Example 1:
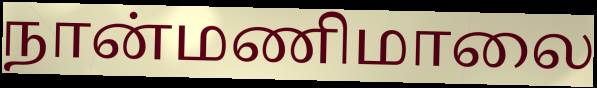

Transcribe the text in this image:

நான்மணிமாலை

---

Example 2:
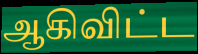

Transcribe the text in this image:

ஆகிவிட்ட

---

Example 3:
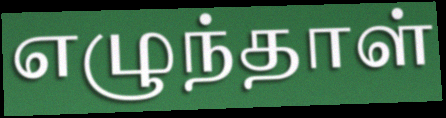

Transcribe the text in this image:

எழுந்தாள்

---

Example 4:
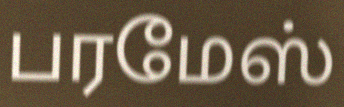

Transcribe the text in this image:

பரமேஸ்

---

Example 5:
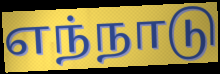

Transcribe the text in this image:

எந்நாடு